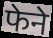
फेने